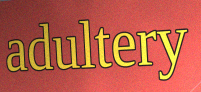
adultery